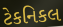
ટેકનિકલ